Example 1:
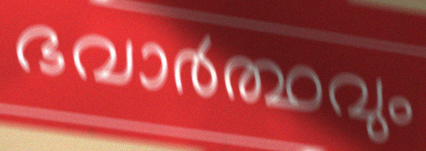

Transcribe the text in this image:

ഭവാർത്ഥവും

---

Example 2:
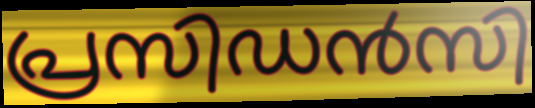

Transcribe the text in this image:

പ്രസിഡൻസി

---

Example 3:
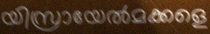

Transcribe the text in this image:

യിസ്രായേൽമക്കളെ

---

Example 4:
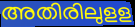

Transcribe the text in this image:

അതിരിലുളള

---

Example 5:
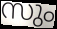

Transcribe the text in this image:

സും